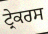
ਟ੍ਰੇਕਰਸ